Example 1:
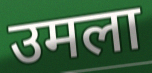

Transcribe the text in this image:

उमला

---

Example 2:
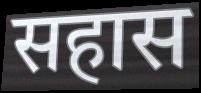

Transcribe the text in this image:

सहास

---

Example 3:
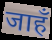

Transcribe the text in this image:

जाहँ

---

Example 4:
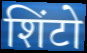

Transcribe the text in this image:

शिंटो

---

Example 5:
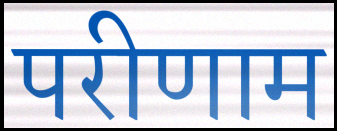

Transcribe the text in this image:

परीणाम